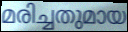
മരിച്ചതുമായ